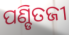
ପଣ୍ଡିତଜୀ